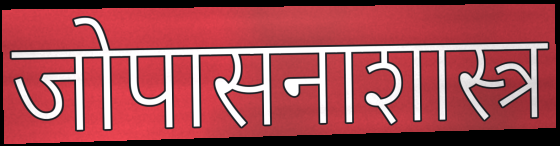
जोपासनाशास्त्र